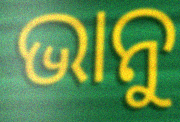
ଭାନୁ